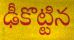
ఢీకొట్టిన